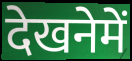
देखनेमें